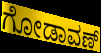
ಗೋಡಾವಣ್